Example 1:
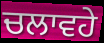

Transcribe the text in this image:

ਚਲਾਵਹੇ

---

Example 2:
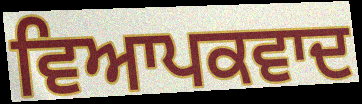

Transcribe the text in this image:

ਵਿਆਪਕਵਾਦ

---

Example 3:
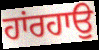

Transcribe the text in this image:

ਹਾਂਰਹਾਉ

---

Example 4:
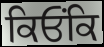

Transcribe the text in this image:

ਕਿਓਂਕਿ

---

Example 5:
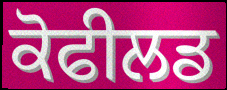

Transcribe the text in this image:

ਕੋਫੀਲਡ